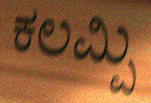
ಕಲಮ್ಪಿ